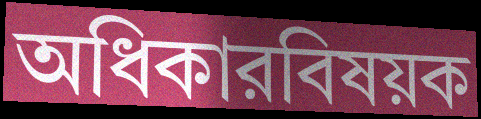
অধিকারবিষয়ক